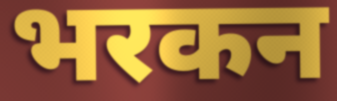
भरकन